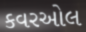
કવરઓલ